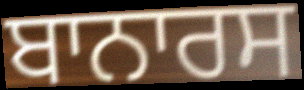
ਬਾਨਾਰਸ